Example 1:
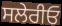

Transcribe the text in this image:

ਸਲੇਰੀਓ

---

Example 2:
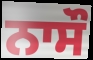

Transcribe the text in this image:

ਨਾਸੌ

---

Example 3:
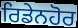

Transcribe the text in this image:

ਰਿਡੇਨਹੋਰ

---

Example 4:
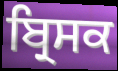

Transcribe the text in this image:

ਬ੍ਰਿਸਕ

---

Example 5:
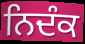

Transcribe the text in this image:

ਨਿਦੰਕ